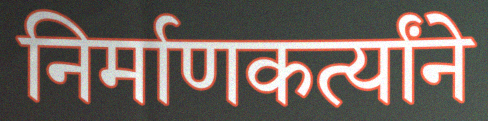
निर्माणकर्त्यांने